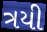
ત્રયી